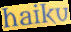
haiku